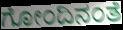
ಗೋಂದಿನಂತೆ